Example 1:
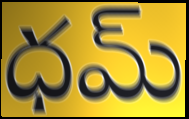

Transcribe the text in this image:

ధమ్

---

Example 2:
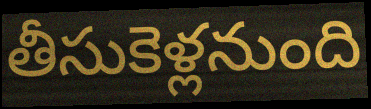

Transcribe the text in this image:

తీసుకెళ్లనుంది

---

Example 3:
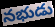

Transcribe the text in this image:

నభుడు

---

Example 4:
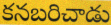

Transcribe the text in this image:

కనబరిచాడు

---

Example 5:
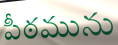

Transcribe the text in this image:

పీఠమును